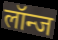
लॉन्ज